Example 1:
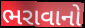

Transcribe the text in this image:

ભરાવાનો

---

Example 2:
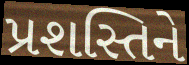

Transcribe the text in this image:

પ્રશસ્તિને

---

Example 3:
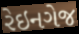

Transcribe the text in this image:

રેઇનગેજ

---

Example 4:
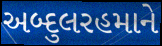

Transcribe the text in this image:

અબ્દુલરહમાને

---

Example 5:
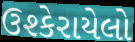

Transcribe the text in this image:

ઉશ્કેરાયેલો